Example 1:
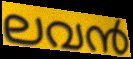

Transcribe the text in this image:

ലവൻ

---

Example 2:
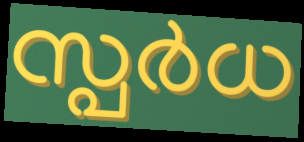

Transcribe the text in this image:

സ്പർധ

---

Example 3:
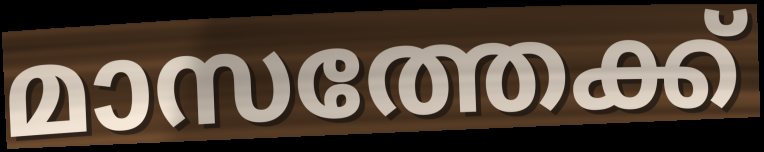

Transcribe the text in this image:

മാസത്തേക്ക്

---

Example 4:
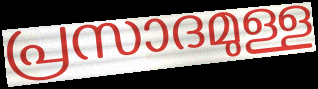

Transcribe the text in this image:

പ്രസാദമുള്ള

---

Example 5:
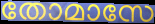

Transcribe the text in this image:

തോമാസേ